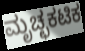
ಮೃಚ್ಛಕಟಿಕ